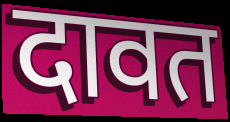
दावत